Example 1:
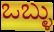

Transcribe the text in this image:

ಒಬ್ಳು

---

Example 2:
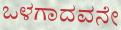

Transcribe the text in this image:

ಒಳಗಾದವನೇ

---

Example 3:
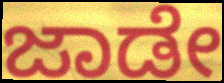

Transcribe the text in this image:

ಜಾಡೇ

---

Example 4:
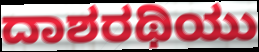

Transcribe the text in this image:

ದಾಶರಥಿಯು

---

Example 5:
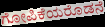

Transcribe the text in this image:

ಗೋಪಿಕೆಯರೊಡನೆ